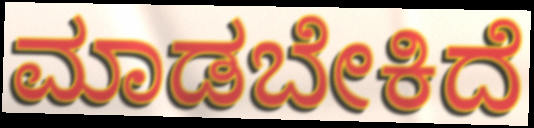
ಮಾಡಬೇಕಿದೆ